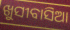
ଖୁସୀବାସିଆ